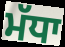
ਮੱਧਾ